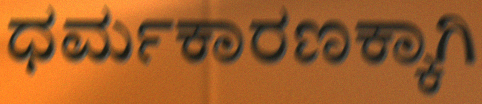
ಧರ್ಮಕಾರಣಕ್ಕಾಗಿ